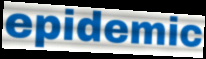
epidemic